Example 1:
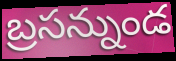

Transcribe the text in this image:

బ్రసన్నుండ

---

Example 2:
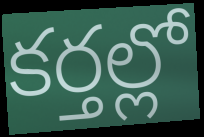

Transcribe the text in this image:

కర్తల్లో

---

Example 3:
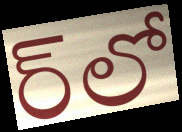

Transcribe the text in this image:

ర్‌లో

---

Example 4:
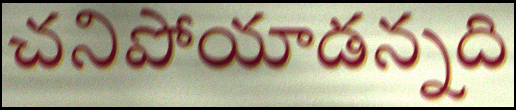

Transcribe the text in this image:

చనిపోయాడన్నది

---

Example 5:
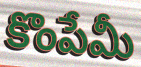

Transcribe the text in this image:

కొంపేమీ